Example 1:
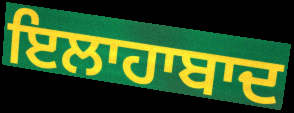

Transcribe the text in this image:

ਇਲਾਹਾਬਾਦ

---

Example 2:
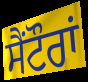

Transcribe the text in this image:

ਸੈਂਟੌਰਾਂ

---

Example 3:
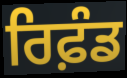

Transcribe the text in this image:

ਰਿਫ਼ੰਡ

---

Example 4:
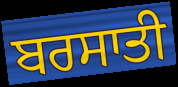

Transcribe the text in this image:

ਬਰਸਾਤੀ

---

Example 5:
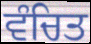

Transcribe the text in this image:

ਵੰਚਿਤ